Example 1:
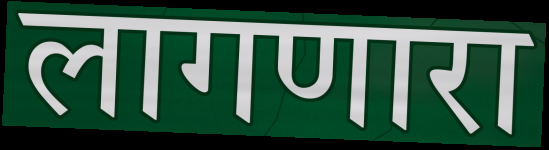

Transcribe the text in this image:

लागणारा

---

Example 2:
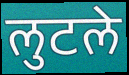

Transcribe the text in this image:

लुटले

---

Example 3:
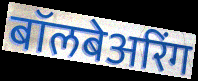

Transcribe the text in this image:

बॉलबेअरिंग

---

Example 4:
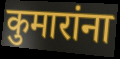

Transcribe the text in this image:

कुमारांना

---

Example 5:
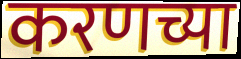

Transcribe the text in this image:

करणच्या